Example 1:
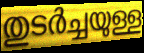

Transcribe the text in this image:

തുടർച്ചയുള്ള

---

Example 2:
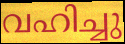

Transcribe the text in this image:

വഹിച്ചു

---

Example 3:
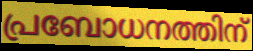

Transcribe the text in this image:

പ്രബോധനത്തിന്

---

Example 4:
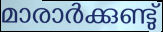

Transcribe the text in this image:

മാരാർക്കുണ്ടു്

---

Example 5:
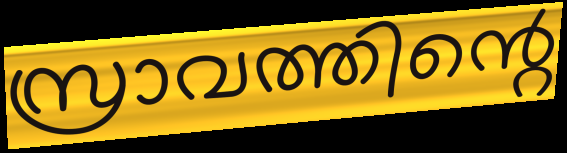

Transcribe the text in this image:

സ്രാവത്തിന്റെ